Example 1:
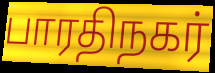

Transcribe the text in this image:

பாரதிநகர்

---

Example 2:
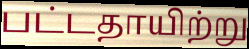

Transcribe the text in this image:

பட்டதாயிற்று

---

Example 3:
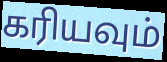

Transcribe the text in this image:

கரியவும்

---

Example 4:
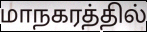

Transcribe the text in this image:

மாநகரத்தில்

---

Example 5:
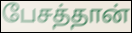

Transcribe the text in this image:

பேசத்தான்